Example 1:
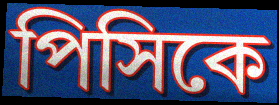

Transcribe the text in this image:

পিসিকে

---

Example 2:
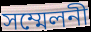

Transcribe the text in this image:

সম্মেলনী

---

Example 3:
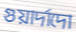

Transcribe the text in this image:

গুয়ার্দাদো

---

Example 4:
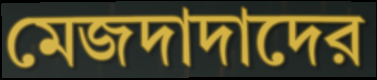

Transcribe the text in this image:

মেজদাদাদের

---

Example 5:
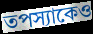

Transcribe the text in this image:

তপস্যাকেও